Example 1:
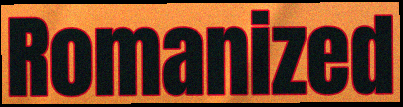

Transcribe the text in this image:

Romanized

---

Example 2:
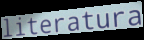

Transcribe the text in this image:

literatura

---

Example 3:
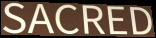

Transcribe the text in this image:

SACRED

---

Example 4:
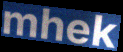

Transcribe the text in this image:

mhek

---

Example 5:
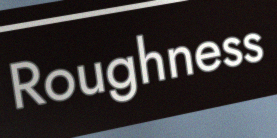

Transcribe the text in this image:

Roughness